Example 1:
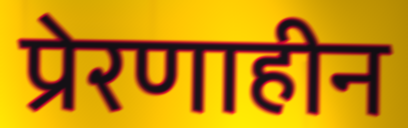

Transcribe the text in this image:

प्रेरणाहीन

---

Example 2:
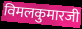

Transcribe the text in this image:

विमलकुमारजी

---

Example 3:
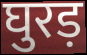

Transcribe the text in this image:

घुरड़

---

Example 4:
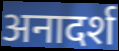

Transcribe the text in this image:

अनादर्श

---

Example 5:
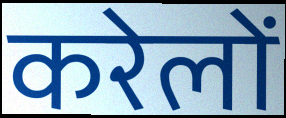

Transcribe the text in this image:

करेलों